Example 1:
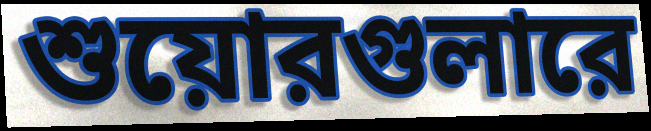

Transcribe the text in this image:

শুয়োরগুলারে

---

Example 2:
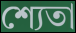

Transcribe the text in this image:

শ্যেতা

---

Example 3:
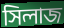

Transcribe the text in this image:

সিলাজ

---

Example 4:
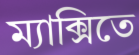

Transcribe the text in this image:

ম্যাক্সিতে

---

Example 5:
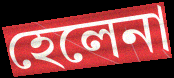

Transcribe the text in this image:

হেলেনা